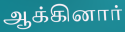
ஆக்கினார்